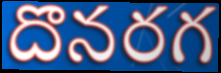
దొనరగ